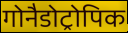
गोनैडोट्रोपिक